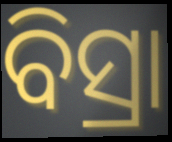
ବିସ୍ରା